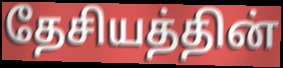
தேசியத்தின்